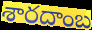
శారదాంబ